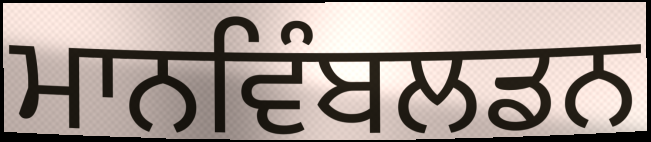
ਮਾਨਵਿੰਬਲਡਨ